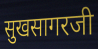
सुखसागरजी